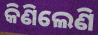
କିଣିଲେଣି